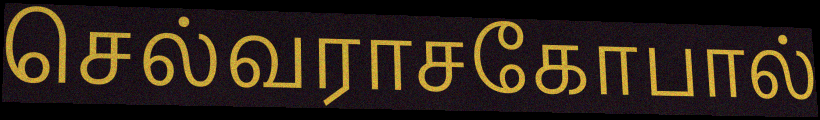
செல்வராசகோபால்